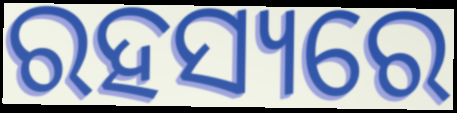
ରହସ୍ୟରେ